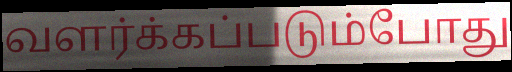
வளர்க்கப்படும்போது